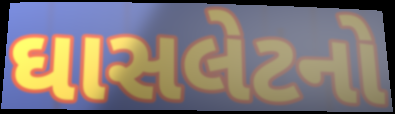
ઘાસલેટનો